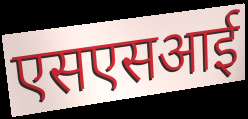
एसएसआई